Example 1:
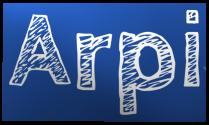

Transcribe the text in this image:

Arpi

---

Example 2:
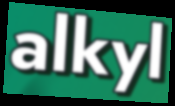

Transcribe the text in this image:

alkyl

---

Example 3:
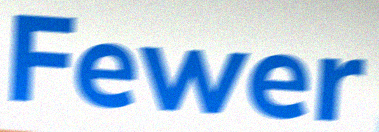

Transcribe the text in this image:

Fewer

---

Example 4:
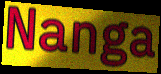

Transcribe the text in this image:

Nanga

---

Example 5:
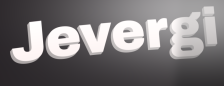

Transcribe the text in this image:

Jevergi